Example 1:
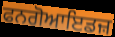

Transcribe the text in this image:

ਫਨਗੋਆਇਡਜ਼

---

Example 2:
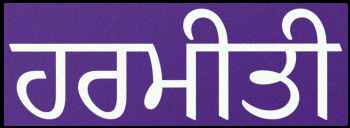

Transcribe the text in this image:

ਹਰਮੀਤੀ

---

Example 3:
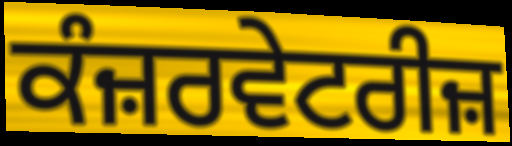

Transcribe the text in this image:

ਕੰਜ਼ਰਵੇਟਰੀਜ਼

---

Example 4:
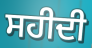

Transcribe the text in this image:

ਸਹੀਦੀ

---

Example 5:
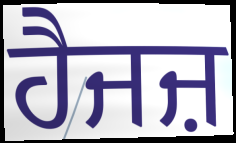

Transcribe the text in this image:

ਹੈਜਜ਼